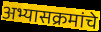
अभ्यासक्रमांचे